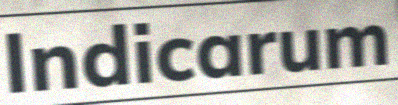
Indicarum